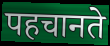
पहचानते